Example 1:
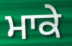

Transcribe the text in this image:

ਮਾਕੇ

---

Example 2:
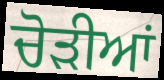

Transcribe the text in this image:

ਚੋੜੀਆਂ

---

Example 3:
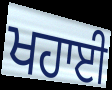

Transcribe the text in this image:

ਖਹਾਈ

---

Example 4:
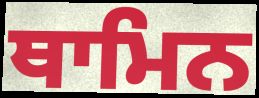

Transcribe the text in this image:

ਥਾਮਿਨ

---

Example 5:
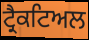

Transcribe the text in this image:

ਟ੍ਰੈਕਟਿਅਲ